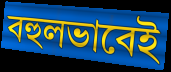
বহুলভাবেই